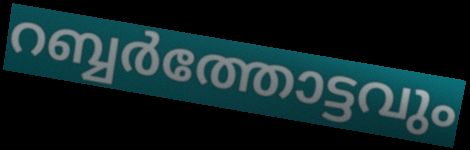
റബ്ബർത്തോട്ടവും